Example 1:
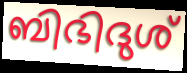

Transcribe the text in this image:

ബിഭിദുശ്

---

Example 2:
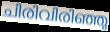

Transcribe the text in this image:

ചിരിവിരിഞ്ഞു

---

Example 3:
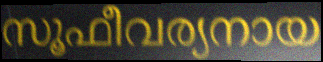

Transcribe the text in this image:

സൂഫീവര്യനായ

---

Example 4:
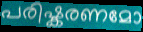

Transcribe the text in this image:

പരിഷ്കരണമോ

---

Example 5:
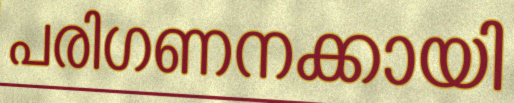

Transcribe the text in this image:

പരിഗണനക്കായി